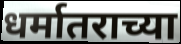
धर्मातराच्या